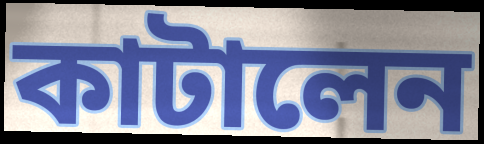
কাটালেন